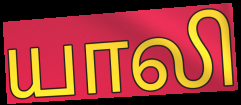
யாலி